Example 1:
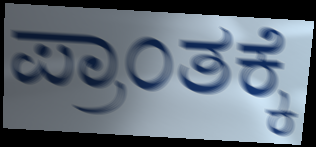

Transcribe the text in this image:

ಪ್ರಾಂತಕ್ಕೆ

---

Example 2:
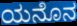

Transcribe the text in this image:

ಯನೊನ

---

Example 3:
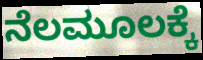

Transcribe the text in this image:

ನೆಲಮೂಲಕ್ಕೆ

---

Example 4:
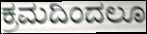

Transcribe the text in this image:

ಕ್ರಮದಿಂದಲೂ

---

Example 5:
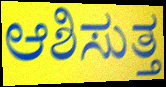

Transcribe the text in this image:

ಆಶಿಸುತ್ತ